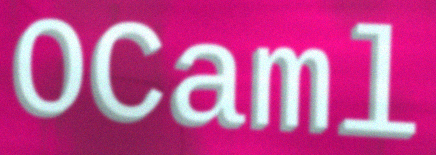
OCaml